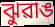
ঝুৱাঙ